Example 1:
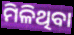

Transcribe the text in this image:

ମିଳିଥିବା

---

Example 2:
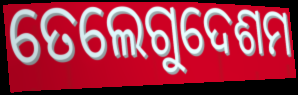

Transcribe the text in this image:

ତେଲେଗୁଦେଶମ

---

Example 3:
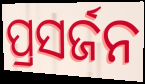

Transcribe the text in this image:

ପ୍ରସର୍ଜନ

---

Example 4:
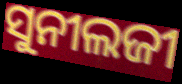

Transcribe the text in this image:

ସୁନୀଲଜୀ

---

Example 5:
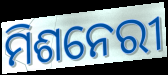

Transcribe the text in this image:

ମିଶନେରୀ